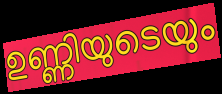
ഉണ്ണിയുടെയും